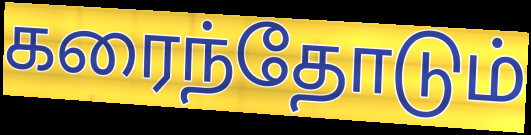
கரைந்தோடும்